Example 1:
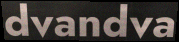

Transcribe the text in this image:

dvandva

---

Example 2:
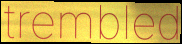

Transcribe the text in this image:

trembled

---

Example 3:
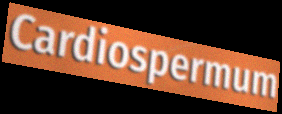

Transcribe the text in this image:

Cardiospermum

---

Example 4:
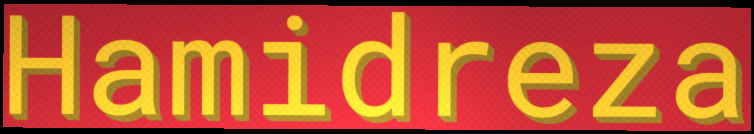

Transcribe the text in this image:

Hamidreza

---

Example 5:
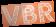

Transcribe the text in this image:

VBR